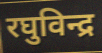
रघुविन्द्र